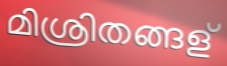
മിശ്രിതങ്ങള്